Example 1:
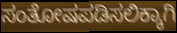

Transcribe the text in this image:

ಸಂತೋಷಪಡಿಸಲಿಕ್ಕಾಗಿ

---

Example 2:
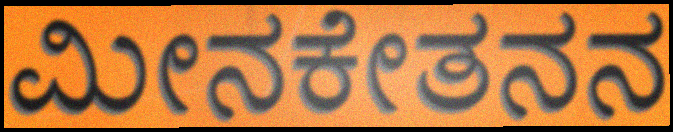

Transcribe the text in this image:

ಮೀನಕೇತನನ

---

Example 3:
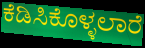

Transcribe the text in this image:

ಕೆಡಿಸಿಕೊಳ್ಳಲಾರೆ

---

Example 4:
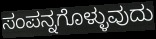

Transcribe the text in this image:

ಸಂಪನ್ನಗೊಳ್ಳುವುದು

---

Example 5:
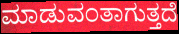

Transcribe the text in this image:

ಮಾಡುವಂತಾಗುತ್ತದೆ